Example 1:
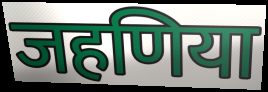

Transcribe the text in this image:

जहणिया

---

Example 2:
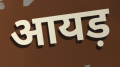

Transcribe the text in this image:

आयड़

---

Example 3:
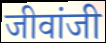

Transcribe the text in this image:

जीवांजी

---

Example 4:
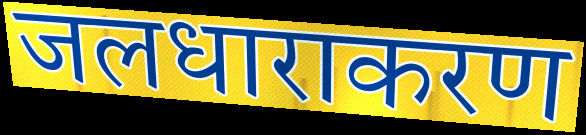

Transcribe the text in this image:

जलधाराकरण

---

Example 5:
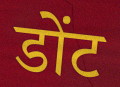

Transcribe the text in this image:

डोंट